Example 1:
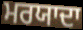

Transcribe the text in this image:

ਮਰਯਾਦਾ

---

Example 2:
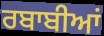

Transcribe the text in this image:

ਰਬਾਬੀਆਂ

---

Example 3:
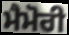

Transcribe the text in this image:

ਮੈਮੋਰੀ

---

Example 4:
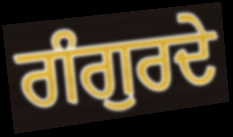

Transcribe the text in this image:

ਗੰਗੁਰਦੇ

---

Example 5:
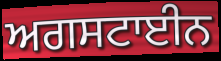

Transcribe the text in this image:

ਅਗਸਟਾਈਨ